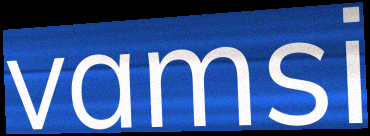
vamsi